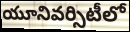
యూనివర్సిటీలో